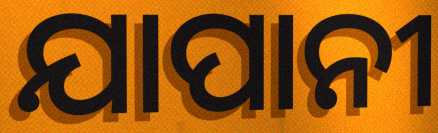
ଯାପାନୀ